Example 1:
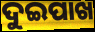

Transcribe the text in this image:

ଦୁଇପାଖ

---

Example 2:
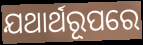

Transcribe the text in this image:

ଯଥାର୍ଥରୂପରେ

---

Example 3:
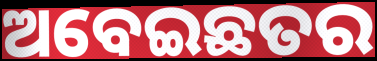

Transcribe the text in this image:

ଅବେଇଛତର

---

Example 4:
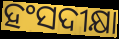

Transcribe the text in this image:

ହଂସଦୀକ୍ଷା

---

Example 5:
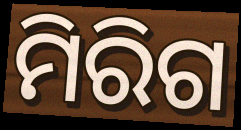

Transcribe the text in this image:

ମିରିଗ